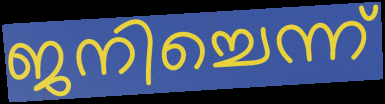
ജനിച്ചെന്ന്